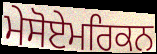
ਮੇਸੋਏਮਰਿਕਨ